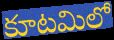
కూటమిలో